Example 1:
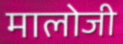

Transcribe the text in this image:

मालोजी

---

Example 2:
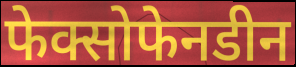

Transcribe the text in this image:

फेक्सोफेनडीन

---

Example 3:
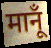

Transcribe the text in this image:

मानूँ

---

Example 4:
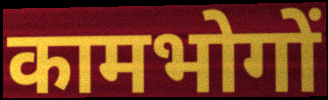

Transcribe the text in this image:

कामभोगों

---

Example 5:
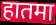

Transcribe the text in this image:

हातमा